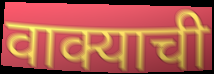
वाक्याची